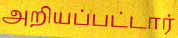
அறியப்பட்டார்